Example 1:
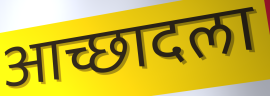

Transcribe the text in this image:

आच्छादला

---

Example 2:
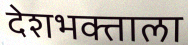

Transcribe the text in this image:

देशभक्ताला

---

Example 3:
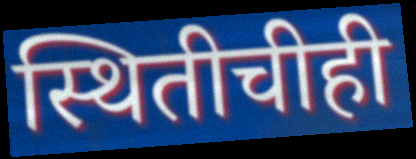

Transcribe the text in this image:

स्थितीचीही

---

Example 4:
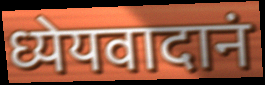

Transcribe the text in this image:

ध्येयवादानं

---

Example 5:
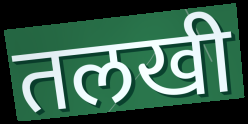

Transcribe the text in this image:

तलखी